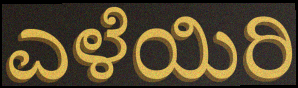
ಎಳೆಯಿರಿ